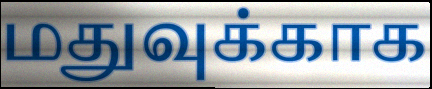
மதுவுக்காக